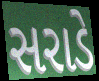
સરાડે